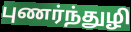
புணர்ந்துழி